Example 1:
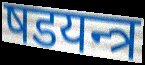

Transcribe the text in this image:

षडयन्त्र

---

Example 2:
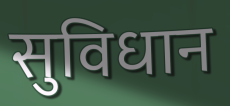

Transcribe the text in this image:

सुविधान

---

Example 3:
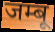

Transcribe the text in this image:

जम्बू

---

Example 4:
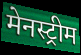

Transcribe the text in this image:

मेनस्ट्रीम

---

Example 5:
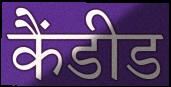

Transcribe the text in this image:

कैंडीड